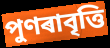
পুণৰাবৃত্তি